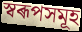
স্বৰূপসমূহ